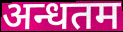
अन्धतम